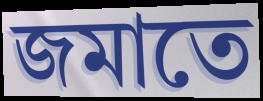
জমাতে